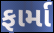
ફાર્મા